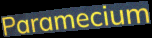
Paramecium